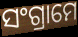
ସଂଗ୍ରାମେ